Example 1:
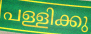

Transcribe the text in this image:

പള്ളിക്കു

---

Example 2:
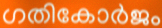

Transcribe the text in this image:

ഗതികോർജം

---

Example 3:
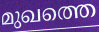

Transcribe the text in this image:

മുഖത്തെ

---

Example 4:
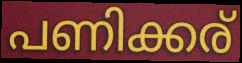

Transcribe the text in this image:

പണിക്കര്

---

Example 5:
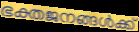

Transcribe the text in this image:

ഭക്തജനങ്ങൾക്ക്